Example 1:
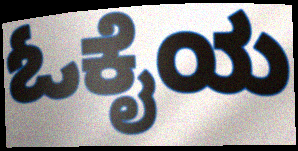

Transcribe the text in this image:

ಓಕೈಯ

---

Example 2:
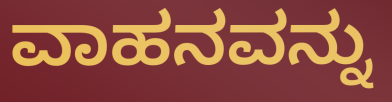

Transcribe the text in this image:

ವಾಹನವನ್ನು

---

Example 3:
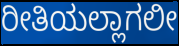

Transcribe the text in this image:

ರೀತಿಯಲ್ಲಾಗಲೀ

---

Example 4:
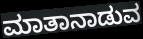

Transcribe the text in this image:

ಮಾತಾನಾಡುವ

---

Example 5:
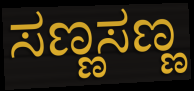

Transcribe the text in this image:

ಸಣ್ಣಸಣ್ಣ